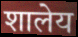
शालेय